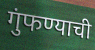
गुंफण्याची